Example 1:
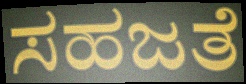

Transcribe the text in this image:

ಸಹಜತೆ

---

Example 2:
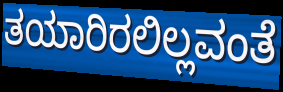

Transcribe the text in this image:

ತಯಾರಿರಲಿಲ್ಲವಂತೆ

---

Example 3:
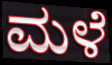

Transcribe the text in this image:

ಮಳೆ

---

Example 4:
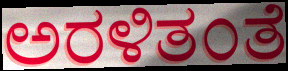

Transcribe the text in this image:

ಅರಳಿತಂತೆ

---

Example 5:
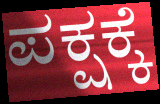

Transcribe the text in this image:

ಪಕ್ಷಕ್ಕೆ